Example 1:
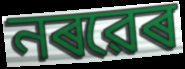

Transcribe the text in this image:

নৰৱেৰ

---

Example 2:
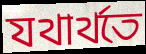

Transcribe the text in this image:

যথাৰ্থতে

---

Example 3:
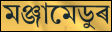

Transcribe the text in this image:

মঞ্জামেডুৰ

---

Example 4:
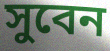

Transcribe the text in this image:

সুবেন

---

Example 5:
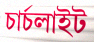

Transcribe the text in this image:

চাৰ্চলাইট